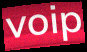
voip